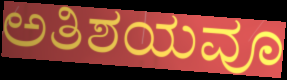
ಅತಿಶಯವೂ